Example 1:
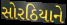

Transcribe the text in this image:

સોરઠિયાને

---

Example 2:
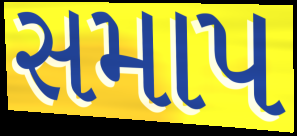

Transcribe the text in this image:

સમાપ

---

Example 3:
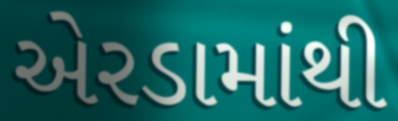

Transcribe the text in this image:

એરડામાંથી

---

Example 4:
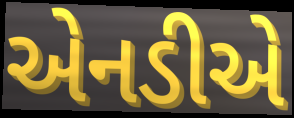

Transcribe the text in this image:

એનડીએ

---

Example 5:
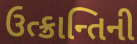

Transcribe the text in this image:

ઉત્ક્રાન્તિની